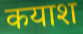
कयाश